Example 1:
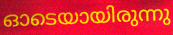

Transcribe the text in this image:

ഓടെയായിരുന്നു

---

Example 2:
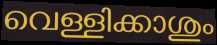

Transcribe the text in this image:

വെള്ളിക്കാശും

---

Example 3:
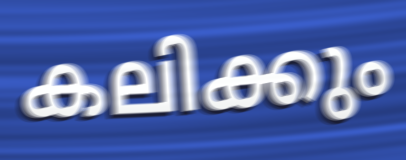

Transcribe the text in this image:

കലിക്കും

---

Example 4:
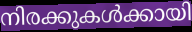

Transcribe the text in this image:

നിരക്കുകൾക്കായി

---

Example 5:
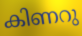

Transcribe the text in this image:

കിണറു